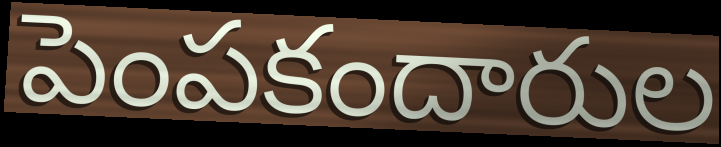
పెంపకందారుల